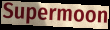
Supermoon